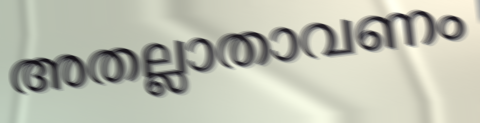
അതല്ലാതാവണം